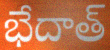
భేదాత్